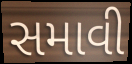
સમાવી